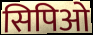
सिपिओ